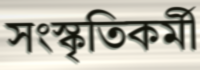
সংস্কৃতিকর্মী